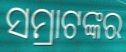
ସମ୍ରାଟଙ୍କର